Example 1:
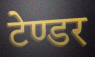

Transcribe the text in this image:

टेण्‍डर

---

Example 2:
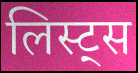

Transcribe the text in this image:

लिस्ट्स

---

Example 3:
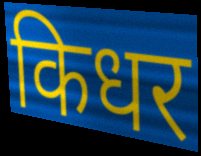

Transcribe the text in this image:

किधर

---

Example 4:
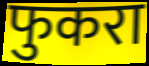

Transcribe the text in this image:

फुकरा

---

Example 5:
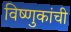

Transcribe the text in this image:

विष्णुकांची